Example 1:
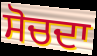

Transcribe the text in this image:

ਸੋਚਦਾ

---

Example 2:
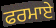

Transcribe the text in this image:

ਫਰਮਾਏ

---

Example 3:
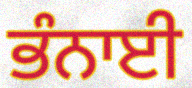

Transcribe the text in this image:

ਭੰਨਾਈ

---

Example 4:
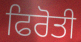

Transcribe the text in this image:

ਫਿਰੋਤੀ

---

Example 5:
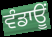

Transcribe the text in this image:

ਵੰਡਾਊਂ